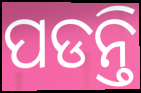
ପଡନ୍ତି